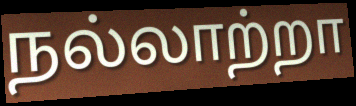
நல்லாற்றா